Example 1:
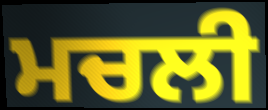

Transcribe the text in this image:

ਮਚਲੀ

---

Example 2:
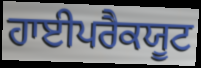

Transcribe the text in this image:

ਹਾਈਪਰੈਕਯੂਟ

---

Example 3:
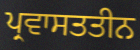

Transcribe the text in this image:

ਪ੍ਰਵਾਸਤਤੀਨ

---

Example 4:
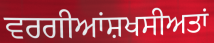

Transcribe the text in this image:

ਵਰਗੀਆਂਸ਼ਖਸੀਅਤਾਂ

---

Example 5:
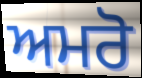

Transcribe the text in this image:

ਅਮਰੋ